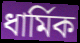
ধাৰ্মিক